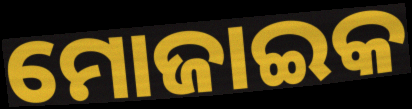
ମୋଜାଇକ